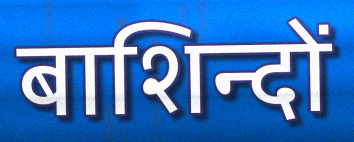
बाशिन्दों